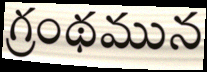
గ్రంథమున